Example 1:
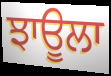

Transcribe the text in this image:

ਝਾਊਲਾ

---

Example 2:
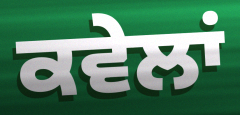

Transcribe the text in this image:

ਕਵੇਲਾਂ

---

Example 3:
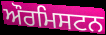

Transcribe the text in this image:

ਔਰਮਿਸਟਨ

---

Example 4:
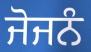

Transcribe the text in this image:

ਜੋਜਨੰ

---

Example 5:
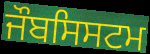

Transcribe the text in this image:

ਜੌਬਸਿਸਟਮ